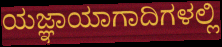
ಯಜ್ಞಾಯಾಗಾದಿಗಳಲ್ಲಿ